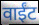
वाईंट